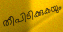
തീപിടിക്കുകയും